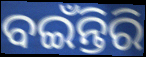
ବଇଁନ୍ତିରି